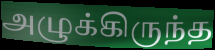
அழுக்கிருந்த